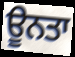
ਊਨਤਾ